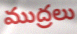
ముద్రలు